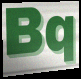
Bq